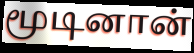
மூடினான்